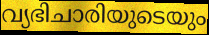
വ്യഭിചാരിയുടെയും